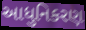
આધુનિકરણ